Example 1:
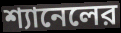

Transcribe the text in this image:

শ্যানেলের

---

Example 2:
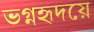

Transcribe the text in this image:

ভগ্নহৃদয়ে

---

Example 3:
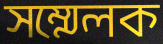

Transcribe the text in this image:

সম্মেলক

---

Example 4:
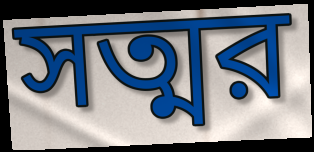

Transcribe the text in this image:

সত্মর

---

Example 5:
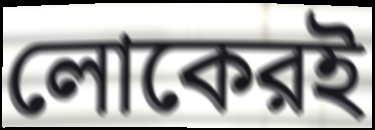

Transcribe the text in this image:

লোকেরই